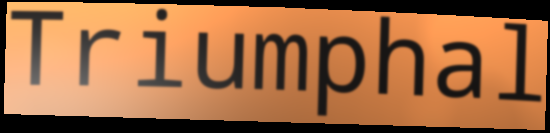
Triumphal